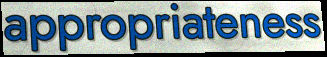
appropriateness